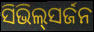
ସିଭିଲ୍‌ସର୍ଜନ